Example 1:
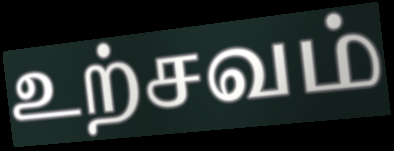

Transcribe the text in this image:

உற்சவம்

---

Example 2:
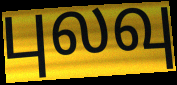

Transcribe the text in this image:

புலவு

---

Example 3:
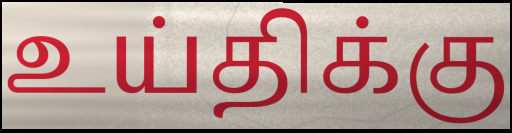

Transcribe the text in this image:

உய்திக்கு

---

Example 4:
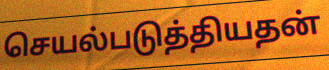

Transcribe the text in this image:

செயல்படுத்தியதன்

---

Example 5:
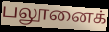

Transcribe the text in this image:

பலூனைக்